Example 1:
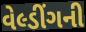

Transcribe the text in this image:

વેલ્ડીંગની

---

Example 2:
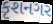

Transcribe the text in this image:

કૃશનગર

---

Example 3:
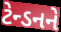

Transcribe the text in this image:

ટેન્ડનને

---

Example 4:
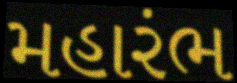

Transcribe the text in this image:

મહારંભ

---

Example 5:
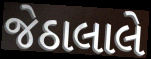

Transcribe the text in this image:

જેઠાલાલે